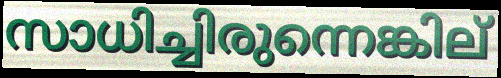
സാധിച്ചിരുന്നെങ്കില്